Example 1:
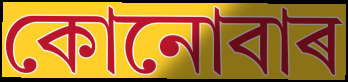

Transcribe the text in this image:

কোনোবাৰ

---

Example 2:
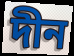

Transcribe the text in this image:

দীন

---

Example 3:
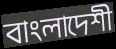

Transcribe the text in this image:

বাংলাদেশী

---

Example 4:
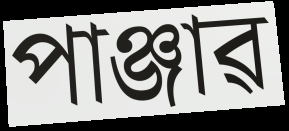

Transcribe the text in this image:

পাঞ্জাৱ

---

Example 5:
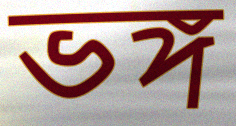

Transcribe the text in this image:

ভঙ্গ